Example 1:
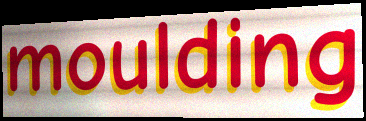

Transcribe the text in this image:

moulding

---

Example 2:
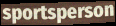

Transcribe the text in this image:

sportsperson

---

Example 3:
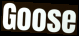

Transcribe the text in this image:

Goose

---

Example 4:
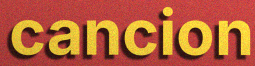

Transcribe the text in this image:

cancion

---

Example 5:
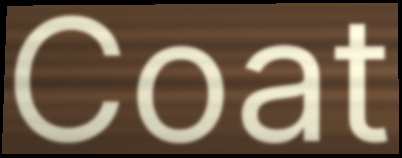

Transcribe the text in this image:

Coat